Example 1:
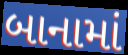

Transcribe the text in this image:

બાનામાં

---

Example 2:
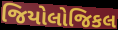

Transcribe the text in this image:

જિયોલોજિકલ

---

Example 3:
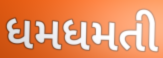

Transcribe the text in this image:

ધમધમતી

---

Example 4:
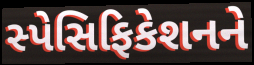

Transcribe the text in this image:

સ્પેસિફિકેશનને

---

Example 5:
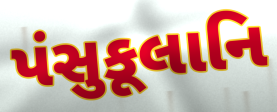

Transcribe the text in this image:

પંસુકૂલાનિ